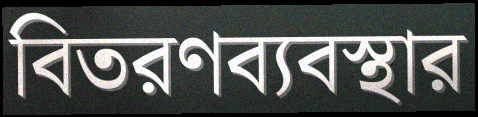
বিতরণব্যবস্থার